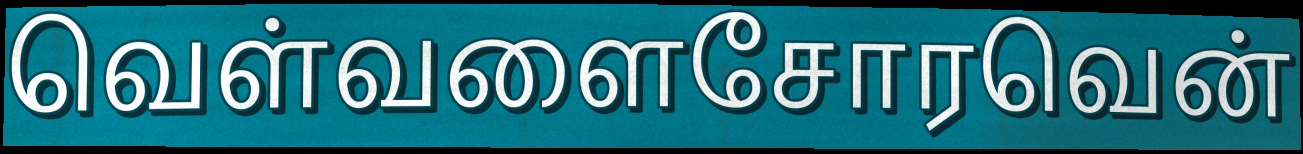
வெள்வளைசோரவென்